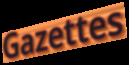
Gazettes